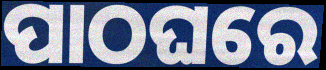
ପାଠଘରେ